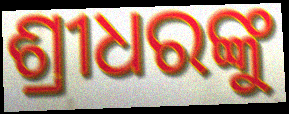
ଶ୍ରୀଧରଙ୍କୁ